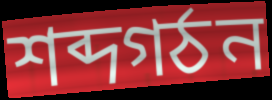
শব্দগঠন